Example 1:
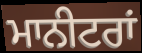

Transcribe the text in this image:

ਮਾਨੀਟਰਾਂ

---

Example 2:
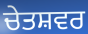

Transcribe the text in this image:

ਚੇਤਸ਼ਵਰ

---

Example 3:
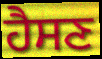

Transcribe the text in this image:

ਹੈਸਣ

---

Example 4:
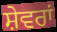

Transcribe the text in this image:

ਸ਼ੇਵਰਾਂ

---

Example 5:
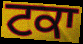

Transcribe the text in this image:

ਟਕਾ